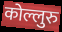
कोल्लुरु